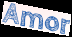
Amor